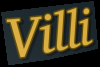
Villi